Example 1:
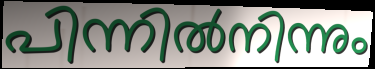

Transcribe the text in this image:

പിന്നിൽനിന്നും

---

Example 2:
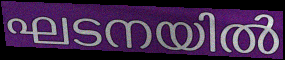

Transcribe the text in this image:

ഘടനയിൽ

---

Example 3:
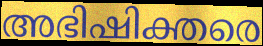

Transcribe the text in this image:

അഭിഷിക്തരെ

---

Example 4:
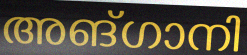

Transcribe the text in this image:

അങ്ഗാനി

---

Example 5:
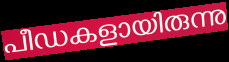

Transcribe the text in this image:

പീഡകളായിരുന്നു